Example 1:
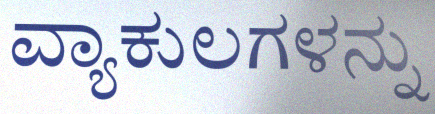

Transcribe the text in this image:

ವ್ಯಾಕುಲಗಳನ್ನು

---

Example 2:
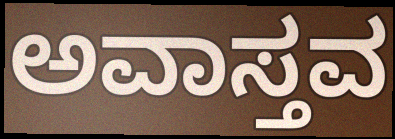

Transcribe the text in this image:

ಅವಾಸ್ತವ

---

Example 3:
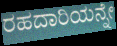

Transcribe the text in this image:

ರಹದಾರಿಯನ್ನೇ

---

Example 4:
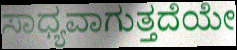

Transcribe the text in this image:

ಸಾಧ್ಯವಾಗುತ್ತದೆಯೇ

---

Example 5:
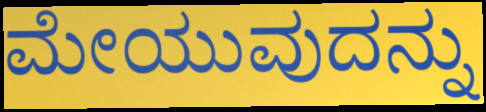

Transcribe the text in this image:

ಮೇಯುವುದನ್ನು